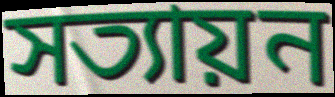
সত্যায়ন